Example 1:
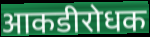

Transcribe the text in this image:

आकडीरोधक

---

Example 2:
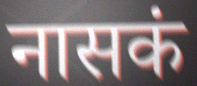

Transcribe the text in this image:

नासकं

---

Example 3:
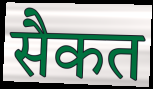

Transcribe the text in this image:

सैकत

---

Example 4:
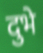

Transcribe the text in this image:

दुभे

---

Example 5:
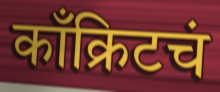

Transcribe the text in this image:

काँक्रिटचं